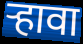
ऱ्हावा